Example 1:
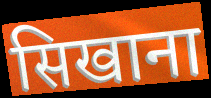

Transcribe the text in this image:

सिखाना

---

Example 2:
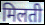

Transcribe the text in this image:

मिलती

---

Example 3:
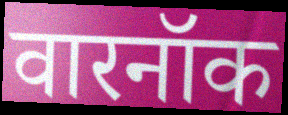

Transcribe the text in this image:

वारनॉक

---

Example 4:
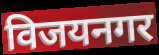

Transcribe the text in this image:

विजयनगर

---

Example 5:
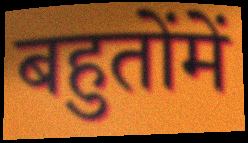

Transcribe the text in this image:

बहुतोंमें